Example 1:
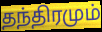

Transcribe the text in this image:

தந்திரமும்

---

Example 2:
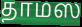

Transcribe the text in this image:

தாமஸ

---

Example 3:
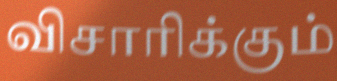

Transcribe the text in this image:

விசாரிக்கும்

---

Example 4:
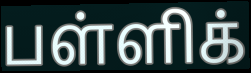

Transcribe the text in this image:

பள்ளிக்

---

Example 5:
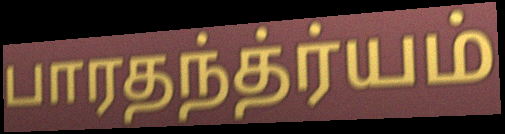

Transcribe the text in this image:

பாரதந்த்ர்யம்